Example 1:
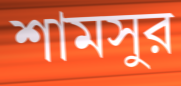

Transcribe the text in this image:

শামসুর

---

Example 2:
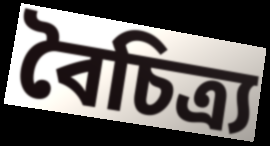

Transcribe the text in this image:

বৈচিত্র্য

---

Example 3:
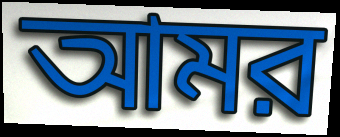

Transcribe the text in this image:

আমর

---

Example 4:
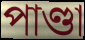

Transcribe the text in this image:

পাণ্ডা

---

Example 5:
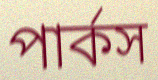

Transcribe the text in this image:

পার্কস